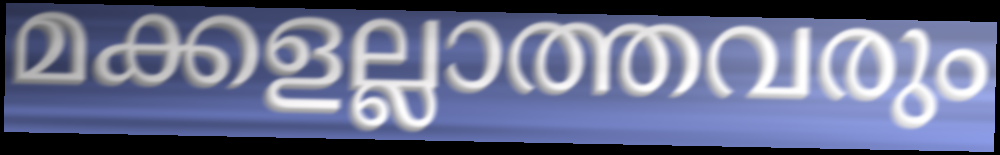
മക്കളല്ലാത്തവരും